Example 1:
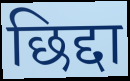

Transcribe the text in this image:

छिद्दा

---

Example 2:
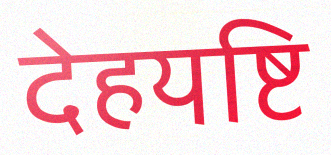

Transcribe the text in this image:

देहयष्टि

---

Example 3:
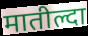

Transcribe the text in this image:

मातील्‍दा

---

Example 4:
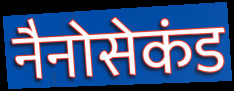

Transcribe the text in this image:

नैनोसेकंड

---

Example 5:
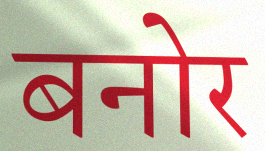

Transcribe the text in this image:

बनोर